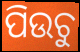
ପିଉଚୁ